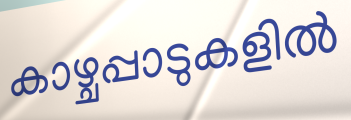
കാഴ്ചപ്പാടുകളിൽ